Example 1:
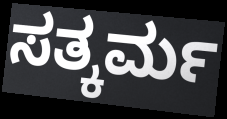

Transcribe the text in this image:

ಸತ್ಕರ್ಮ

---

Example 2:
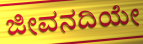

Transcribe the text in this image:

ಜೀವನದಿಯೇ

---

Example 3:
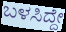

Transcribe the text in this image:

ಬಳಸಿದ್ದೇ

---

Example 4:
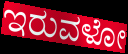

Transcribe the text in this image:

ಇರುವಳೋ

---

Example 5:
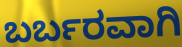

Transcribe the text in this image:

ಬರ್ಬರವಾಗಿ